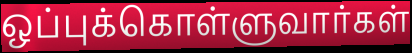
ஒப்புக்கொள்ளுவார்கள்